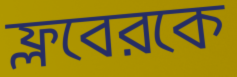
ফ্লবেরকে